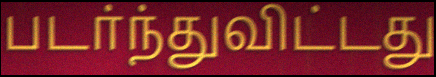
படர்ந்துவிட்டது